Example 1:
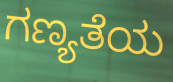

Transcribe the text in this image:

ಗಣ್ಯತೆಯ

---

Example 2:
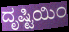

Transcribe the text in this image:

ದೃಷ್ಟಿಯಿಂ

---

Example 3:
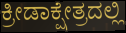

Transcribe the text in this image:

ಕ್ರೀಡಾಕ್ಷೇತ್ರದಲ್ಲಿ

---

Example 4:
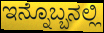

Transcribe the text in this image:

ಇನ್ನೊಬ್ಬನಲ್ಲಿ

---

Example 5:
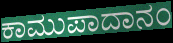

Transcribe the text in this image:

ಕಾಮುಪಾದಾನಂ